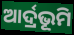
ଆର୍ଦ୍ରଭୂମି